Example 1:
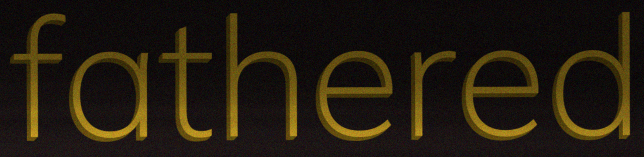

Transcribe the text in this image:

fathered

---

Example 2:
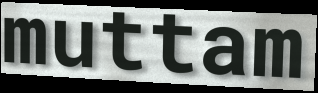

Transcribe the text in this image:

muttam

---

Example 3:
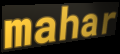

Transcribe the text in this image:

mahar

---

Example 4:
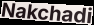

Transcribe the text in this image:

Nakchadi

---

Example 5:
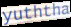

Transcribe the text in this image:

yuththa